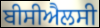
ਬੀਸੀਐਲਸੀ